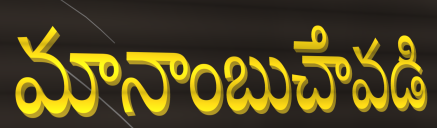
మానాంబుౘావడి